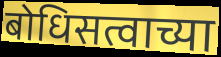
बोधिसत्वाच्या